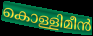
കൊള്ളിമീൻ